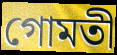
গোমতী